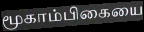
மூகாம்பிகையை